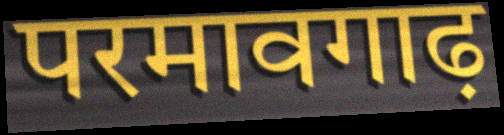
परमावगाढ़